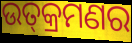
ଉତ୍‍କ୍ରମଣର